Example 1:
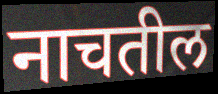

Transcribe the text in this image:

नाचतील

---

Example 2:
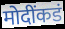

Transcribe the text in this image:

मोदींकडं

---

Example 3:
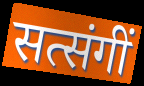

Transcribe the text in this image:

सत्संगीं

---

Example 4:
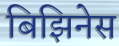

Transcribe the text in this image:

बिझिनेस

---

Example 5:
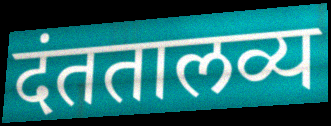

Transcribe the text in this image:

दंततालव्य